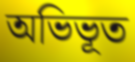
অভিভূত